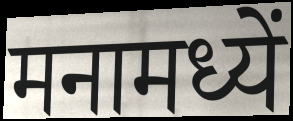
मनामध्यें